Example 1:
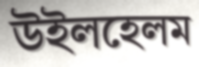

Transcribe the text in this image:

উইলহেলম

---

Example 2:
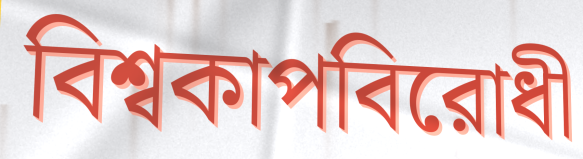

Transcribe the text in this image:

বিশ্বকাপবিরোধী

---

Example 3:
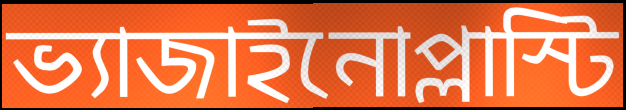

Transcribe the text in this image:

ভ্যাজাইনোপ্লাস্টি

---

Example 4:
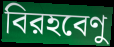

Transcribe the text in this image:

বিরহবেণু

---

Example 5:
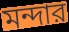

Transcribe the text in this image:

মন্দার